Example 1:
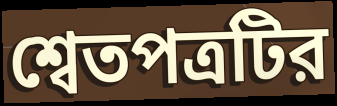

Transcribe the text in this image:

শ্বেতপত্রটির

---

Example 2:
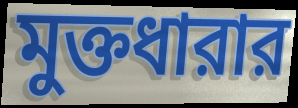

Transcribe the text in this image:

মুক্তধারার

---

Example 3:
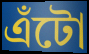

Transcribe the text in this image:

এঁটো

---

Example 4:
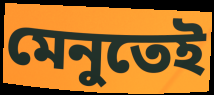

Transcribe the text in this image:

মেনুতেই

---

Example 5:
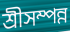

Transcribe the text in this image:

শ্রীসম্পন্ন